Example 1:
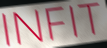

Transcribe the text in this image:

INFIT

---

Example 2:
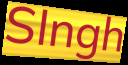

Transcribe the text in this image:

SIngh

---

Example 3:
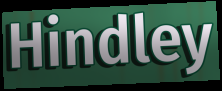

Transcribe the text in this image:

Hindley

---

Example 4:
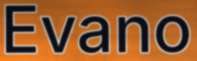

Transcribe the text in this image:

Evano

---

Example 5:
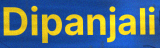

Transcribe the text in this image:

Dipanjali